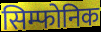
सिम्फोनिक